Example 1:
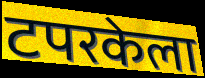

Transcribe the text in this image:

टपरकेला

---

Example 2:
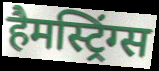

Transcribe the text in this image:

हैमस्ट्रिंग्स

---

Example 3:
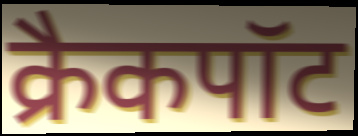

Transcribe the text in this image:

क्रैकपॉट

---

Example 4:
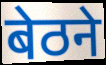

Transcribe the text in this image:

बेठने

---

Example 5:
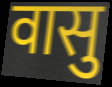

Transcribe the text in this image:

वासु